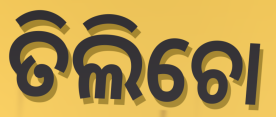
ତିଲିଚୋ